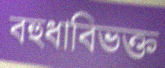
বহুধাবিভক্ত